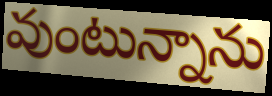
వుంటున్నాను